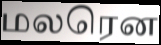
மலரென